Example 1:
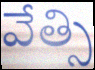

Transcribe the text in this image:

వేత్సి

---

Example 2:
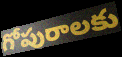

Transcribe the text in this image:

గోపురాలకు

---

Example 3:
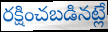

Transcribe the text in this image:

రక్షించబడినట్లే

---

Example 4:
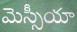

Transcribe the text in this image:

మెస్సీయా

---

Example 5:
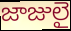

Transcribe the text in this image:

జాజులై